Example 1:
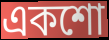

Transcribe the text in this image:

একশো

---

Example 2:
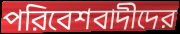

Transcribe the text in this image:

পরিবেশবাদীদের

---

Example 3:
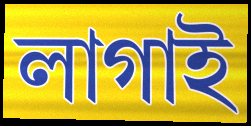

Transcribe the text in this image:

লাগাই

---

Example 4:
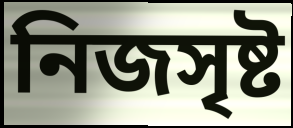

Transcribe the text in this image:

নিজসৃষ্ট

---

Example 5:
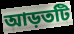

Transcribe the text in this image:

আড়তটি